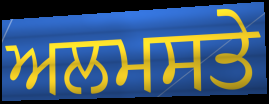
ਅਲਮਸਤੇ